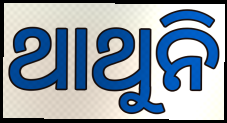
ଥାଥୁନି